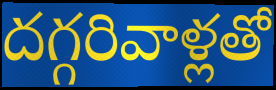
దగ్గరివాళ్లతో